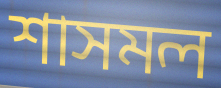
শাসমল